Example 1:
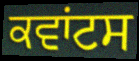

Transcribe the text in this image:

ਕਵਾਂਟਸ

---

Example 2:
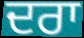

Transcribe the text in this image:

ਦਰਾ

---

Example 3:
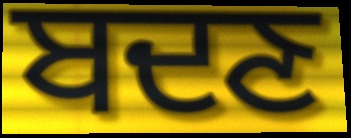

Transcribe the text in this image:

ਬਦਣ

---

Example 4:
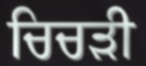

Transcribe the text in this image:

ਚਿਚੜੀ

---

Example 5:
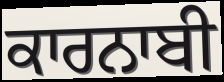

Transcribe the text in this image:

ਕਾਰਨਾਬੀ